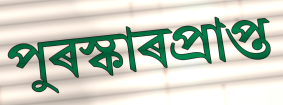
পুৰস্কাৰপ্ৰাপ্ত